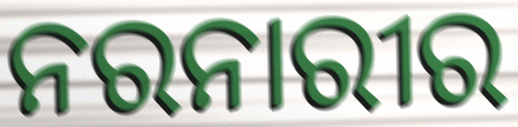
ନରନାରୀର